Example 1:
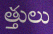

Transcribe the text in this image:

త్తులు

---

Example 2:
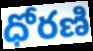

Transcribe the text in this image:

ధోరణి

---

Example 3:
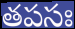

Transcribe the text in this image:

తపసః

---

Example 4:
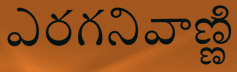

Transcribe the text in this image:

ఎరగనివాణ్ణి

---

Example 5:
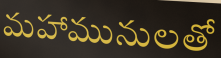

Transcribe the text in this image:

మహామునులతో